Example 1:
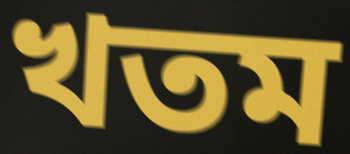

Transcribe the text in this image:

খতম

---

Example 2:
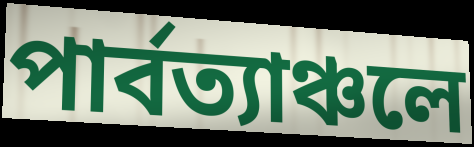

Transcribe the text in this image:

পার্বত্যাঞ্চলে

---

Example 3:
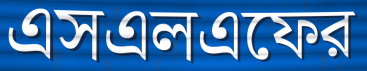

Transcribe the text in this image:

এসএলএফের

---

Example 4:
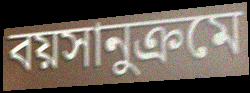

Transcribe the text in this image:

বয়সানুক্রমে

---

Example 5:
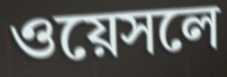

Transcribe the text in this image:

ওয়েসলে